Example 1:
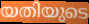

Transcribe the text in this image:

യതിയുടെ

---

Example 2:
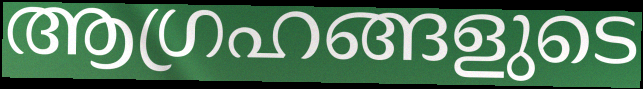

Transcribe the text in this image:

ആഗ്രഹങ്ങളുടെ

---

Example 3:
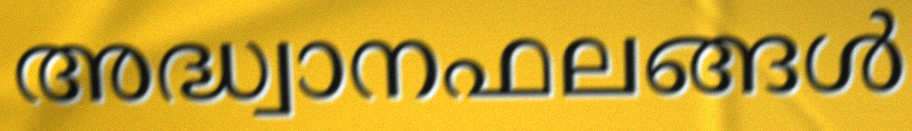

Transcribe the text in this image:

അദ്ധ്വാനഫലങ്ങൾ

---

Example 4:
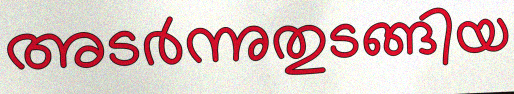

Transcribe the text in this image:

അടർന്നുതുടങ്ങിയ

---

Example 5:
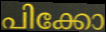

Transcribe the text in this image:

പിക്കോ